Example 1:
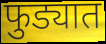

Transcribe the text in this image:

फुड्यात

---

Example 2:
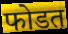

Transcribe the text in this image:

फोडत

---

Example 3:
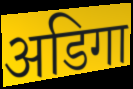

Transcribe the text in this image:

अडिगा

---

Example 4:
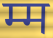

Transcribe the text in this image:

म्म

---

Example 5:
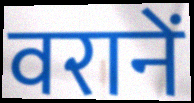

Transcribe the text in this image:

वरानें